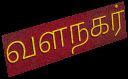
வளநகர்